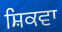
ਸ਼ਿਕਵਾ